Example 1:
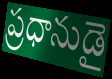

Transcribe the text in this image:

ప్రధానుడై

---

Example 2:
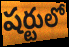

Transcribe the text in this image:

షర్టులో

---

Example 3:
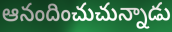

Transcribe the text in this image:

ఆనందించుచున్నాడు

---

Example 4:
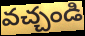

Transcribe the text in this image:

వచ్చండి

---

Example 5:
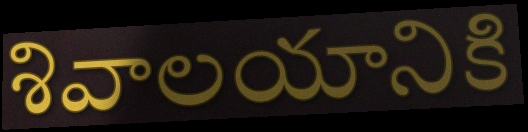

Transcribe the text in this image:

శివాలయానికి